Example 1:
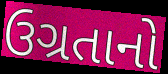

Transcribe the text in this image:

ઉગ્રતાનો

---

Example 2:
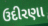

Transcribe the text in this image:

ઉદીરણા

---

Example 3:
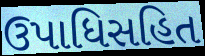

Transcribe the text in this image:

ઉપાધિસહિત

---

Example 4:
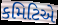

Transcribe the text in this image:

કમિટિએ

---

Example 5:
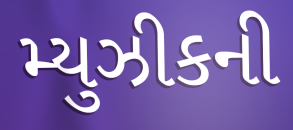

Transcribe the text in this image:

મ્યુઝીકની